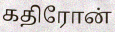
கதிரோன்